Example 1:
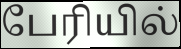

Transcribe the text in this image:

பேரியில்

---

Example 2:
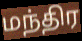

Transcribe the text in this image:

மந்திர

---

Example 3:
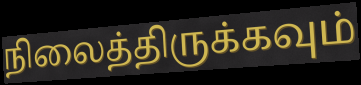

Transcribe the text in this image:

நிலைத்திருக்கவும்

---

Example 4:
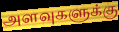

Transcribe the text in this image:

அளவுகளுக்கு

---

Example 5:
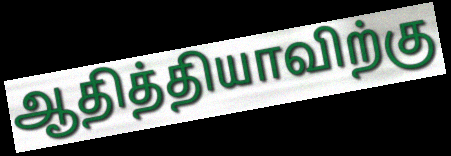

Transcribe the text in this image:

ஆதித்தியாவிற்கு